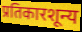
प्रतिकारशून्य